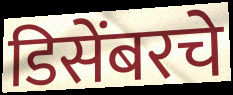
डिसेंबरचे